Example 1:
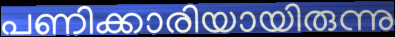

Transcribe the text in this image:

പണിക്കാരിയായിരുന്നു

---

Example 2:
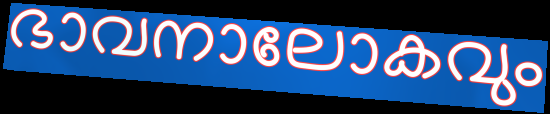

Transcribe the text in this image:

ഭാവനാലോകവും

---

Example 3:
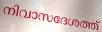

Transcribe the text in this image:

നിവാസദേശത്ത്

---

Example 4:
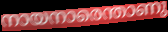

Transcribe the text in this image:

നായനാരെന്താണു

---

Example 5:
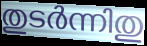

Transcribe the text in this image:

തുടർന്നിതു